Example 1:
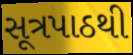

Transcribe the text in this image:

સૂત્રપાઠથી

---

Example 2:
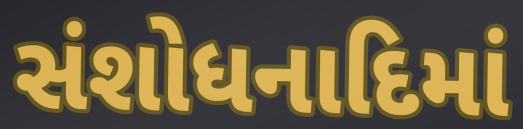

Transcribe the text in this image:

સંશોધનાદિમાં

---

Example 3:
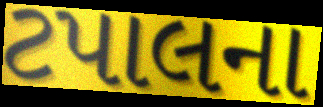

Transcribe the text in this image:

ટપાલના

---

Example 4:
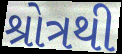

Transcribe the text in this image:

શ્રોત્રથી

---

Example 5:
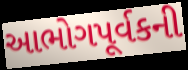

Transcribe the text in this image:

આભોગપૂર્વકની